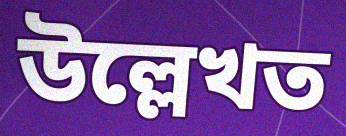
উল্লেখত